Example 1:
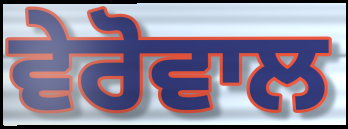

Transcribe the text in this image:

ਵੇਰੋਵਾਲ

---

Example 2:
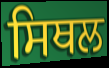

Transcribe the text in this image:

ਸਿਥਲ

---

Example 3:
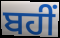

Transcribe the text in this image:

ਬਹੀਂ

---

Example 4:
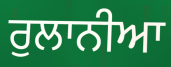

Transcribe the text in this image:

ਰੁਲਾਨੀਆ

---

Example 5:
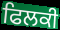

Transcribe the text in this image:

ਫਿਲਕੀ